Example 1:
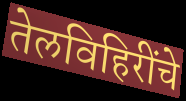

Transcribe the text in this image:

तेलविहिरींचे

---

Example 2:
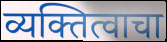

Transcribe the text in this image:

व्यक्तित्वाचा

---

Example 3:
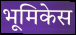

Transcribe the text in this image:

भूमिकेस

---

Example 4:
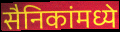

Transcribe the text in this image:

सैनिकांमध्ये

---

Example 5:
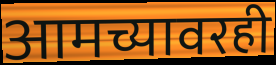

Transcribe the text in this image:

आमच्यावरही